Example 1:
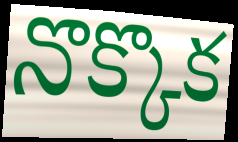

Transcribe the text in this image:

నొక్కొక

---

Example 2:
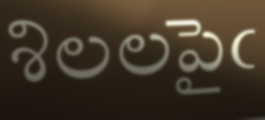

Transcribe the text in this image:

శిలలపైఁ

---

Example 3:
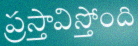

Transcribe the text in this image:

ప్రస్తావిస్తోంది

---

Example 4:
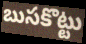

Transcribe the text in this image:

బుసకొట్టు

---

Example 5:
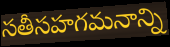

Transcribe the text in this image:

సతీసహగమనాన్ని